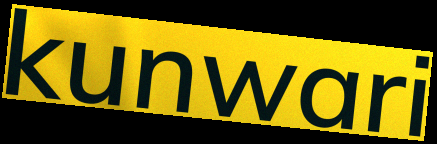
kunwari